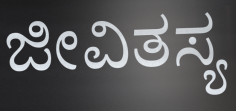
ಜೀವಿತಸ್ಯ